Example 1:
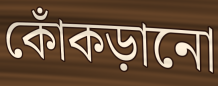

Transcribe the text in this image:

কোঁকড়ানো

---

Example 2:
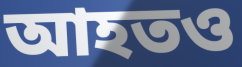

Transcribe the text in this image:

আহতও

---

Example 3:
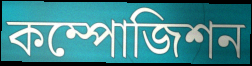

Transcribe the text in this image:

কম্পোজিশন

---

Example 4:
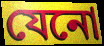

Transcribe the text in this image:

যেনো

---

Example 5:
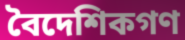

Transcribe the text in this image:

বৈদেশিকগণ